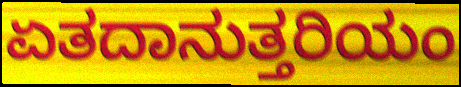
ಏತದಾನುತ್ತರಿಯಂ